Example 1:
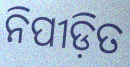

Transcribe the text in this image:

ନିପୀଡ଼ିତ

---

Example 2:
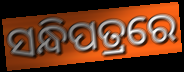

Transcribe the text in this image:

ସନ୍ଧିପତ୍ରରେ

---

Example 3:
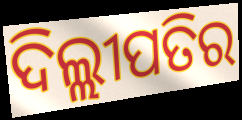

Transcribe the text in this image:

ଦିଲ୍ଲୀପତିର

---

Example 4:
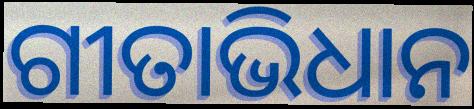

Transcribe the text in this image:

ଗୀତାଭିଧାନ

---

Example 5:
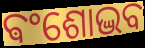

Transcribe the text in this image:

ଵଂଶୋଦ୍ଭବ